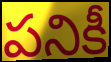
పనికీ